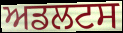
ਅਡਲਟਸ